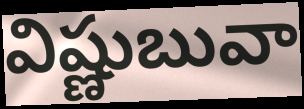
విష్ణుబువా